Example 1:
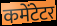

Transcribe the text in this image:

कमेंटेटर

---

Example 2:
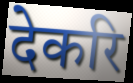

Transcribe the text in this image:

देकरि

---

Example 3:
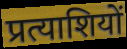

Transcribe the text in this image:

प्रत्‍याशियों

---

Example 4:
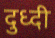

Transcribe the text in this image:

दुध्दी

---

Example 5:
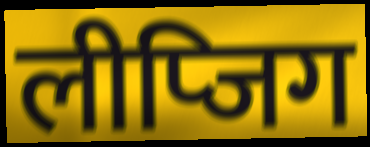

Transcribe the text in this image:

लीप्जिग